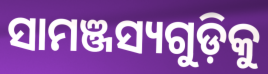
ସାମଞ୍ଜସ୍ୟଗୁଡ଼ିକୁ